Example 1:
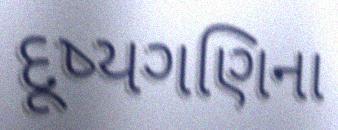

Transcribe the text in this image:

દૂષ્યગણિના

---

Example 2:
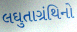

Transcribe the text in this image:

લઘુતાગ્રંથિનો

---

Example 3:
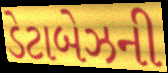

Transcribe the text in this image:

ડેટાબેઝની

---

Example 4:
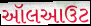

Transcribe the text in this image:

ઑલઆઉટ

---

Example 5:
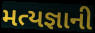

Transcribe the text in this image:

મત્યજ્ઞાની